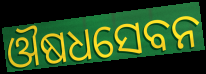
ଔଷଧସେବନ